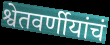
श्वेतवर्णीयांचं